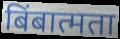
बिंबात्मता